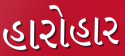
હારોહાર